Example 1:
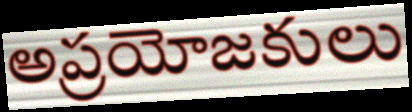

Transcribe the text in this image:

అప్రయోజకులు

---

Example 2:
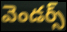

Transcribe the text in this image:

వెండర్స్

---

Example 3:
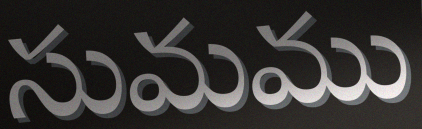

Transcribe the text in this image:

సుమము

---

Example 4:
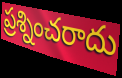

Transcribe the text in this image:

ప్రశ్నించరాదు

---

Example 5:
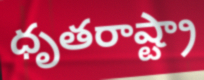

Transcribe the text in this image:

ధృతరాష్ట్రా